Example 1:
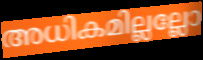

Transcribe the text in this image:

അധികമില്ലല്ലോ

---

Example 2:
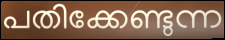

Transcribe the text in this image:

പതിക്കേണ്ടുന്ന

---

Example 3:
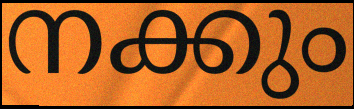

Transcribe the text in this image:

നക്കും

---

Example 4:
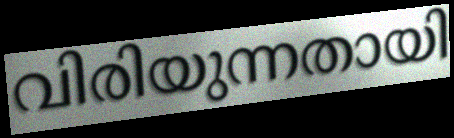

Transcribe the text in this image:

വിരിയുന്നതായി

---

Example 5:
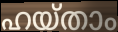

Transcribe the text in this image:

ഹയ്താം